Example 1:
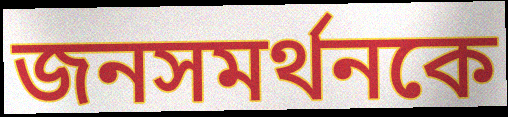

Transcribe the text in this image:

জনসমর্থনকে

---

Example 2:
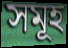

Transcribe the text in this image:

সমূহ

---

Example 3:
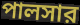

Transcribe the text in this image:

পালসার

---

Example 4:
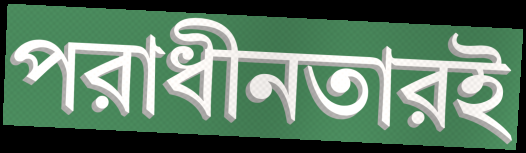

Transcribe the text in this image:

পরাধীনতারই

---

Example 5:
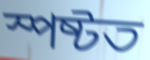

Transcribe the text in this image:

স্পষ্টত